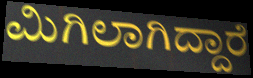
ಮಿಗಿಲಾಗಿದ್ದಾರೆ